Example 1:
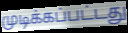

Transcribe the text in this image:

முடிக்கப்பட்டது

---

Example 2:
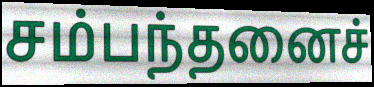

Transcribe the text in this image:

சம்பந்தனைச்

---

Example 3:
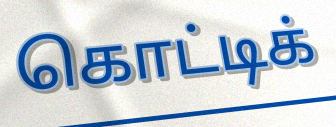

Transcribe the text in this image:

கொட்டிக்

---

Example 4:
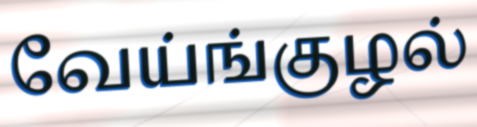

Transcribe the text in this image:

வேய்ங்குழல்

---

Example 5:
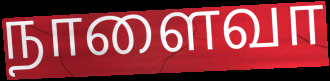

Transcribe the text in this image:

நாளைவா